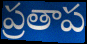
ప్రతాప